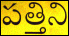
పత్తిని